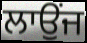
ਲਾਉਂਜ